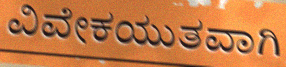
ವಿವೇಕಯುತವಾಗಿ